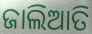
ଜାଲିଆତି